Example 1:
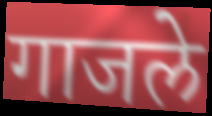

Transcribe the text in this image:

गाजले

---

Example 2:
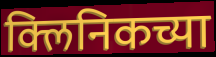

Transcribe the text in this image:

क्लिनिकच्या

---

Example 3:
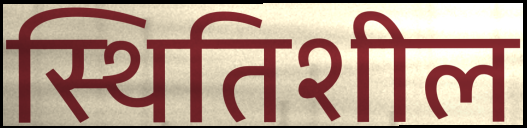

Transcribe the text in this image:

स्थितिशील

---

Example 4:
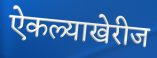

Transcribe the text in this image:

ऐकल्याखेरीज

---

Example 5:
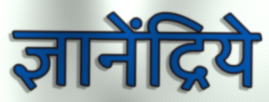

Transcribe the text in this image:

ज्ञानेंद्रिये